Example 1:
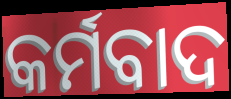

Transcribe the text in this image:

କର୍ମବାଦ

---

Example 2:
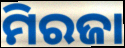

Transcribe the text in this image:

ମିରଜା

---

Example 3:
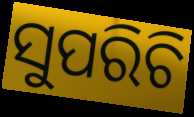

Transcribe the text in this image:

ସୁପରିଚି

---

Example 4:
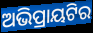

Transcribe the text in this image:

ଅଭିପ୍ରାୟଟିର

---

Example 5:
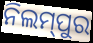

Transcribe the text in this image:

ନିଲମ୍‍ପୁର